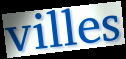
villes